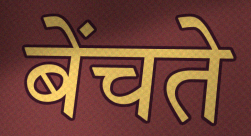
बेंचते